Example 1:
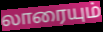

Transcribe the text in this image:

லாரையும்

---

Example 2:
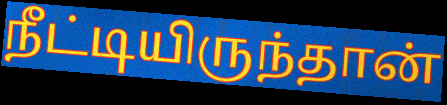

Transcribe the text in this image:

நீட்டியிருந்தான்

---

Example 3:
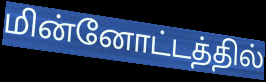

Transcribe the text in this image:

மின்னோட்டத்தில்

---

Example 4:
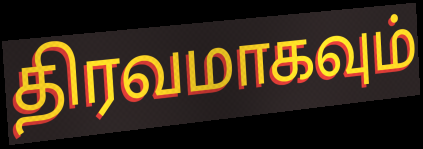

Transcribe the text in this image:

திரவமாகவும்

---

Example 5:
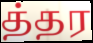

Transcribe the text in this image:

த்தர